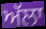
ਅੱਲਾ